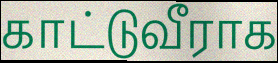
காட்டுவீராக